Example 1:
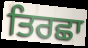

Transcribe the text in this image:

ਤਿਰਛਾ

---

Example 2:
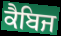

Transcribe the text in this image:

ਕੈਬਿਜ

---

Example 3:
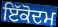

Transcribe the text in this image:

ਇੱਕੋਦਮ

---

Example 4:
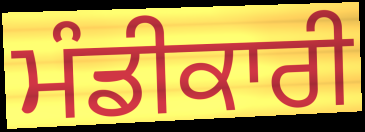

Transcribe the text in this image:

ਮੰਡੀਕਾਰੀ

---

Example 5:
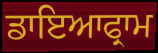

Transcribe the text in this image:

ਡਾਇਆਫ੍ਰਾਮ